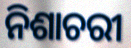
ନିଶାଚରୀ